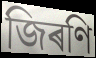
জিৰণি